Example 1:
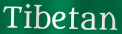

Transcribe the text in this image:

Tibetan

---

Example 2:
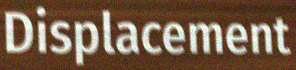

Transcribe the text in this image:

Displacement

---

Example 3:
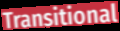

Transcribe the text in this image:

Transitional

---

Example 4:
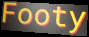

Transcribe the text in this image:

Footy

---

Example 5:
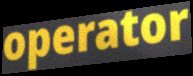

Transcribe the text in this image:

operator